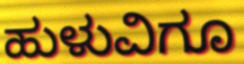
ಹುಳುವಿಗೂ